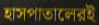
হাসপাতালেরই